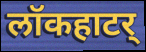
लॉकहाटर्